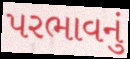
પરભાવનું